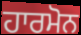
ਹਾਰਮੋਨ